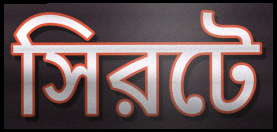
সিরটে